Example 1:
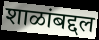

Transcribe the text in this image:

शाळांबद्दल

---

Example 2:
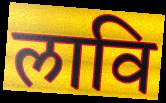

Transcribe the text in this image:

लावि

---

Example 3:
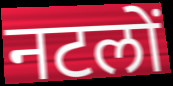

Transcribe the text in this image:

नटलों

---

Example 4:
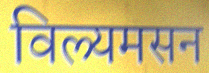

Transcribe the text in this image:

विल्यमसन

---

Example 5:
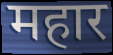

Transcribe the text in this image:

महार